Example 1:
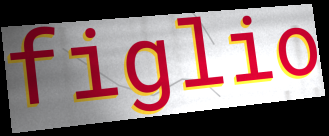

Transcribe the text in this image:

figlio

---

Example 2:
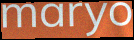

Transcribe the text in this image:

maryo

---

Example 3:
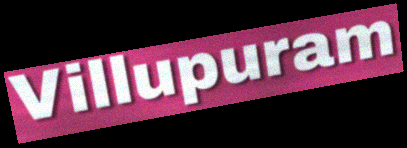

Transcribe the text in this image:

Villupuram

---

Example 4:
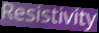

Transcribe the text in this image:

Resistivity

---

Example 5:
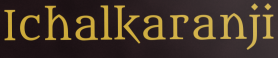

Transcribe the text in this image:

Ichalkaranji